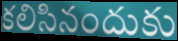
కలిసినందుకు